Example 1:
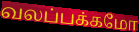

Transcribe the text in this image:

வலப்பக்கமோ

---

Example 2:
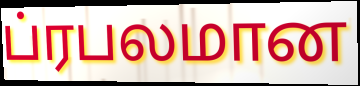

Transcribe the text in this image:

ப்ரபலமான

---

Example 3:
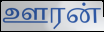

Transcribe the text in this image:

ஊரன்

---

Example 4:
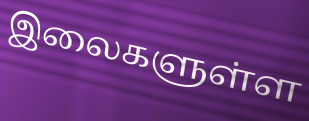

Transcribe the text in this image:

இலைகளுள்ள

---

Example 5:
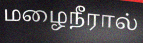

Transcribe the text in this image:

மழைநீரால்